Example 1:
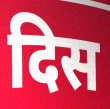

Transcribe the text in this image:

दिस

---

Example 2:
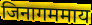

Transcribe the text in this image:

जिनागममाय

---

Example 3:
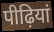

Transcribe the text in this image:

पीढ़ियां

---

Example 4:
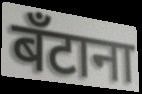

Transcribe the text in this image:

बँटाना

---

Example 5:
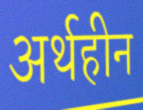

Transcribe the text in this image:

अर्थहीन